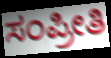
ಸಂಪ್ರೀತಿ